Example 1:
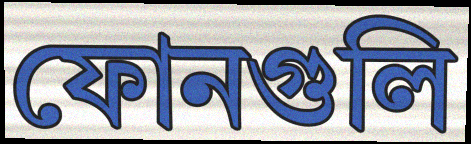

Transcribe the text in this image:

ফোনগুলি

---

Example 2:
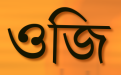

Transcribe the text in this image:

ওজি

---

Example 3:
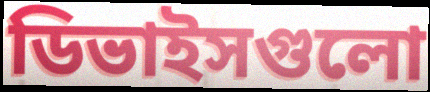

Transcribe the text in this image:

ডিভাইসগুলো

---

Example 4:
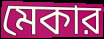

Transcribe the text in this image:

মেকার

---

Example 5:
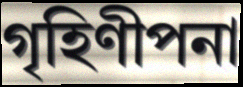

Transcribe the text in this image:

গৃহিণীপনা